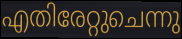
എതിരേറ്റുചെന്നു